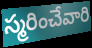
స్మరించేవారి